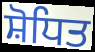
ਸ਼ੋਧਿਤ